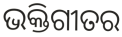
ଭକ୍ତିଗୀତର